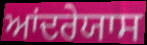
ਆਂਦਰੇਯਾਸ